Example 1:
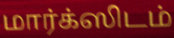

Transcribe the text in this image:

மார்க்ஸிடம்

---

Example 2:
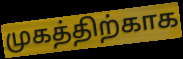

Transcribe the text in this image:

முகத்திற்காக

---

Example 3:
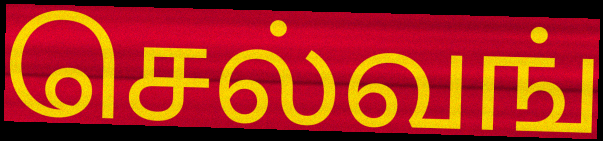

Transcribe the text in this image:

செல்வங்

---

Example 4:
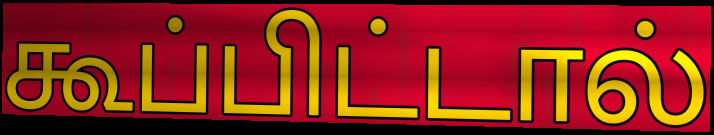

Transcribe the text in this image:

கூப்பிட்டால்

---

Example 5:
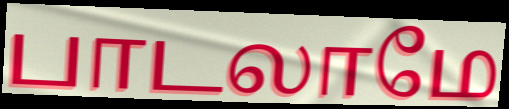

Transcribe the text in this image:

பாடலாமே